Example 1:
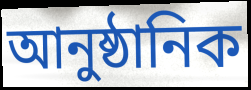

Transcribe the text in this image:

আনুষ্ঠানিক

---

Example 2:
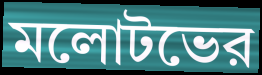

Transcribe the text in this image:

মলোটভের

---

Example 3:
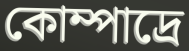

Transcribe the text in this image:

কোম্পাদ্রে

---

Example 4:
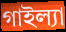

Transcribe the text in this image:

গাইল্যা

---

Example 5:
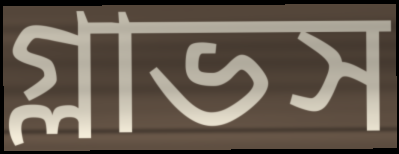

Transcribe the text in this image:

গ্লাভস